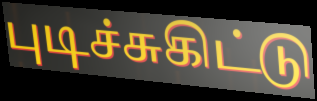
புடிச்சுகிட்டு